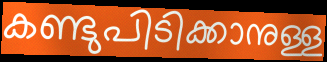
കണ്ടുപിടിക്കാനുള്ള